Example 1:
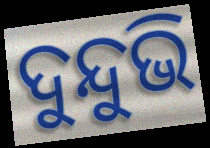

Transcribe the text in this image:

ଦୁନ୍ଦୁଭି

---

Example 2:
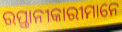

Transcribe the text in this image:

ରପ୍ତାନୀକାରୀମାନେ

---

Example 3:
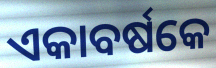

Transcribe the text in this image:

ଏକାବର୍ଷକେ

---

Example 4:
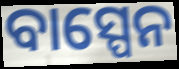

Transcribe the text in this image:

ବାସ୍ପେନ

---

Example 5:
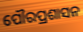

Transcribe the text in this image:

ପୌରପ୍ରଶାସନ